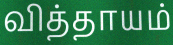
வித்தாயம்